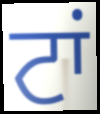
ਟਾਂ